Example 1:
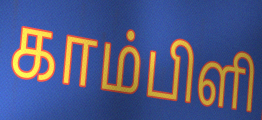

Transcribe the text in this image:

காம்பிளி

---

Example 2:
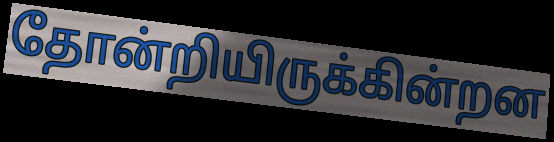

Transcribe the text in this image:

தோன்றியிருக்கின்றன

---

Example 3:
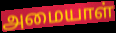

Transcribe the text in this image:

அமையாள்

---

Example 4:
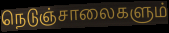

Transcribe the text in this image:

நெடுஞ்சாலைகளும்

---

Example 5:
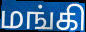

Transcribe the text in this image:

மங்கி